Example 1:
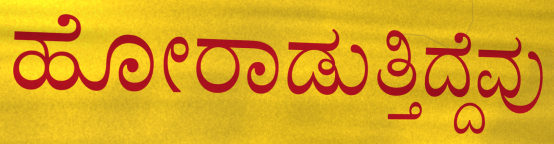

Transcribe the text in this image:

ಹೋರಾಡುತ್ತಿದ್ದೆವು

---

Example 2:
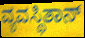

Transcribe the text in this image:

ವ್ಯವಸ್ಥಿತಾನ್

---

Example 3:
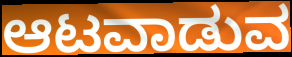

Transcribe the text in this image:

ಆಟವಾಡುವ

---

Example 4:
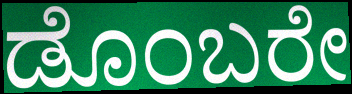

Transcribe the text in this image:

ಡೊಂಬರೇ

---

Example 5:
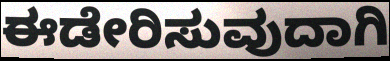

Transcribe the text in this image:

ಈಡೇರಿಸುವುದಾಗಿ